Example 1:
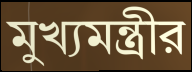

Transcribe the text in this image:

মুখ্যমন্ত্রীর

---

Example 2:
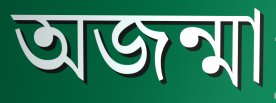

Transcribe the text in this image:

অজন্মা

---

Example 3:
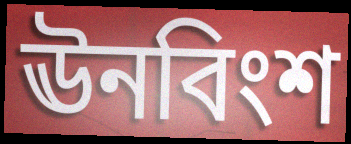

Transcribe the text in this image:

ঊনবিংশ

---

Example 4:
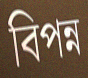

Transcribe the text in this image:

বিপন্ন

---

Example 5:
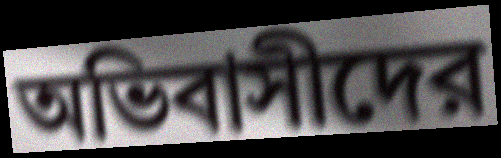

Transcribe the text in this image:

অভিবাসীদের